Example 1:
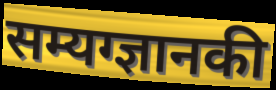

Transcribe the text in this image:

सम्यग्ज्ञानकी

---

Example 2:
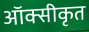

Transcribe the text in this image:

ऑक्सीकृत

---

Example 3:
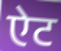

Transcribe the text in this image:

ऐट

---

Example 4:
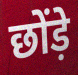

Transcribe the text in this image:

छोंड़े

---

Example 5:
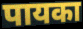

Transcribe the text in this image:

पायका